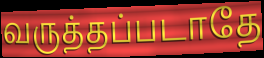
வருத்தப்படாதே